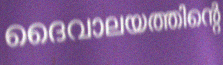
ദൈവാലയത്തിന്റെ